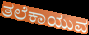
ತಲೆಕಾಯುವ